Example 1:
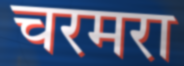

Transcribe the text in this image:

चरमरा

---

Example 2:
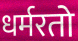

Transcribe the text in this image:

धर्मरतो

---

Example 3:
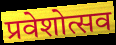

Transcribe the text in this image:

प्रवेशोत्सव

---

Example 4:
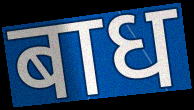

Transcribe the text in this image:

बाध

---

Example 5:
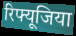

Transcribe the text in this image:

रिफ्यूजिया